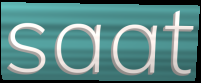
saat